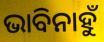
ଭାବିନାହୁଁ